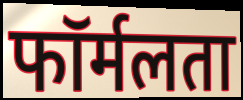
फॉर्मलता